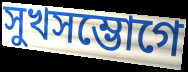
সুখসম্ভোগে